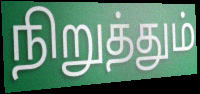
நிறுத்தும்